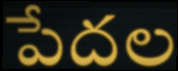
పేదల